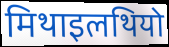
मिथाइलथियो